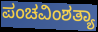
ಪಂಚವಿಂಶತ್ಯಾ